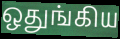
ஒதுங்கிய